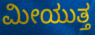
ಮೀಯುತ್ತ